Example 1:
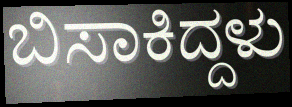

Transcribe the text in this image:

ಬಿಸಾಕಿದ್ದಳು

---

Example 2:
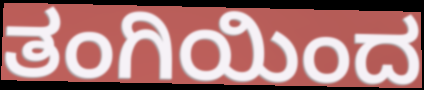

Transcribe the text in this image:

ತಂಗಿಯಿಂದ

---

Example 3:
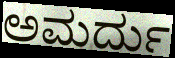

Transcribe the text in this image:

ಅಮರ್ದು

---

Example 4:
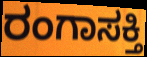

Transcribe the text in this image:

ರಂಗಾಸಕ್ತಿ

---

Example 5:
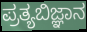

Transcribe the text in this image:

ಪ್ರತ್ಯಬಿಜ್ಞಾನ